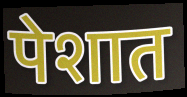
पेशात